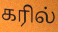
கரில்